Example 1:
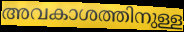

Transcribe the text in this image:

അവകാശത്തിനുള്ള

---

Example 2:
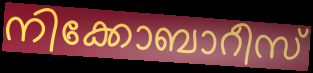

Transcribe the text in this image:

നിക്കോബാറീസ്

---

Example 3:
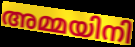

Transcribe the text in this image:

അമ്മയിനി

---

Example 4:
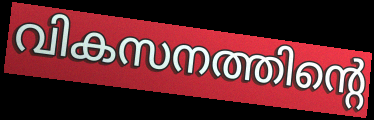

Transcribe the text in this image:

വികസനത്തിന്റെ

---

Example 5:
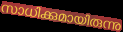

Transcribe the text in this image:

സാധിക്കുമായിരുന്നു